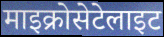
माइक्रोसेटेलाइट